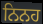
ਨਿਨਹ